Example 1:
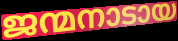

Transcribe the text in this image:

ജന്മനാടായ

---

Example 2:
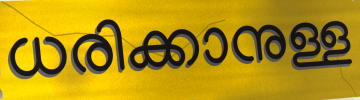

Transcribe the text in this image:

ധരിക്കാനുള്ള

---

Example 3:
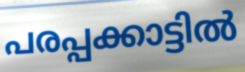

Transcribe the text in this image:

പരപ്പക്കാട്ടിൽ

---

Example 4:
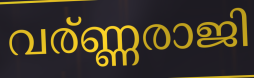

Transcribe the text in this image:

വര്ണ്ണരാജി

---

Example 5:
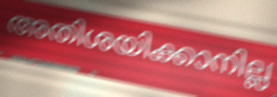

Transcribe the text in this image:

അതിശയിക്കാനില്ല